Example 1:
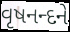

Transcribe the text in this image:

વૃષનન્દને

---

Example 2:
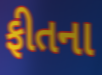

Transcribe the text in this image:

ફીતના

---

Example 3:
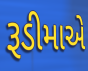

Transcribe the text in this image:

રૂડીમાએ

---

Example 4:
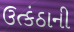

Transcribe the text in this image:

ઉત્કંઠાની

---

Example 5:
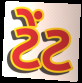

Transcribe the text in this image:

ટેંટ